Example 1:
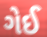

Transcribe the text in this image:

ગેઈ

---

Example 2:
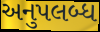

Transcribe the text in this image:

અનુપલબ્ધ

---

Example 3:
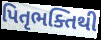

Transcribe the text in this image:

પિતૃભક્તિથી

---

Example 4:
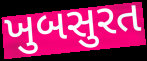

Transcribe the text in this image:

ખુબસુરત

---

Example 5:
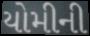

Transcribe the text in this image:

યોમીની